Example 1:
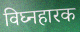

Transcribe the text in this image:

विघ्नहारक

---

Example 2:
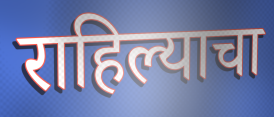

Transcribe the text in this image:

राहिल्याचा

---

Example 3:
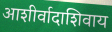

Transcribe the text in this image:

आशीर्वादाशिवाय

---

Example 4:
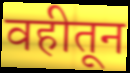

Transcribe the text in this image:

वहीतून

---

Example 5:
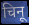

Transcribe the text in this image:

चिनू